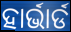
ହାର୍ଭାର୍ଡ